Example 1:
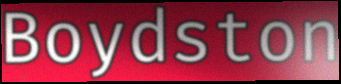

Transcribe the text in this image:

Boydston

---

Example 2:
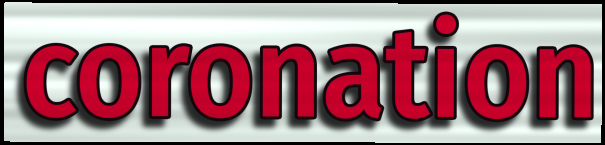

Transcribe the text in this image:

coronation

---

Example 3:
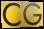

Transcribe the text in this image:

CG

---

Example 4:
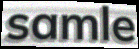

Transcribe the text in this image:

samle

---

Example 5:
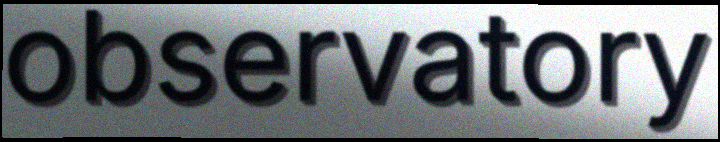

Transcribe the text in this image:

observatory